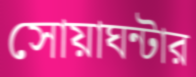
সোয়াঘন্টার